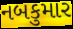
નબકુમાર